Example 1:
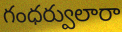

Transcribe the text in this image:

గంధర్వులారా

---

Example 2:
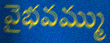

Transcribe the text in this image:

వైభవమ్ము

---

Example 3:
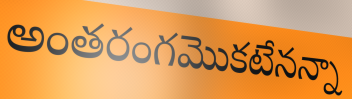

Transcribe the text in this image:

అంతరంగమొకటేనన్నా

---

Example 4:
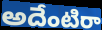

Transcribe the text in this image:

అదేంటిరా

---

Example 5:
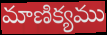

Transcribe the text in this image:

మాణిక్యము